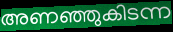
അണഞ്ഞുകിടന്ന